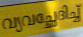
വ്യവച്ഛേദിച്ച്